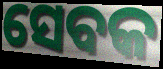
ସେବକ